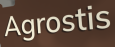
Agrostis